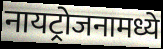
नायट्रोजनामध्ये